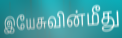
இயேசுவின்மீது